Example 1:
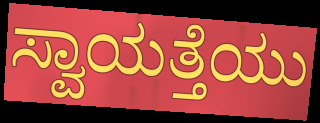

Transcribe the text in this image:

ಸ್ವಾಯತ್ತೆಯು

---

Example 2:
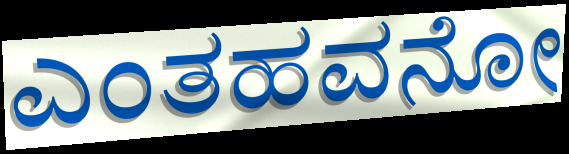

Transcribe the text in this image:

ಎಂತಹವನೋ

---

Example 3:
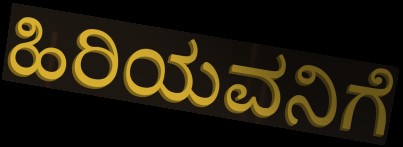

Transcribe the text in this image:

ಹಿರಿಯವನಿಗೆ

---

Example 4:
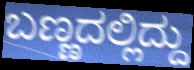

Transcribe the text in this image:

ಬಣ್ಣದಲ್ಲಿದ್ದು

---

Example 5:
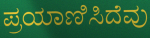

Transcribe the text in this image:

ಪ್ರಯಾಣಿಸಿದೆವು